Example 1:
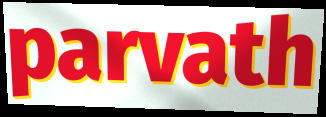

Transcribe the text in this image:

parvath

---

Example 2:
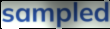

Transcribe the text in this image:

sampled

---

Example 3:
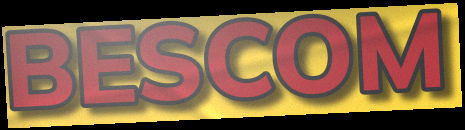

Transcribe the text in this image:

BESCOM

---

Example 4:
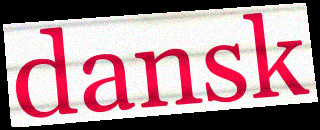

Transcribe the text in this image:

dansk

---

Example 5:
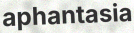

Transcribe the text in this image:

aphantasia